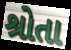
શ્રોતા